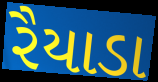
રૈયાડા